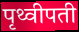
पृथ्वीपती